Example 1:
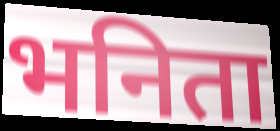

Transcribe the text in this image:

भनिता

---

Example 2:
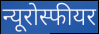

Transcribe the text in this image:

न्यूरोस्फीयर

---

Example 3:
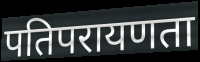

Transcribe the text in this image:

पतिपरायणता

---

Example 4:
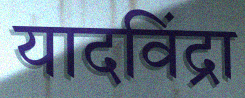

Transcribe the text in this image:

यादविंद्रा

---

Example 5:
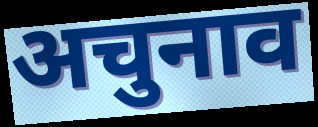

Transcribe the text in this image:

अचुनाव